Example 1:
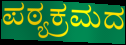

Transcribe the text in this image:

ಪಠ್ಯಕ್ರಮದ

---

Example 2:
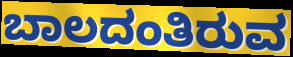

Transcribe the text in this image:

ಬಾಲದಂತಿರುವ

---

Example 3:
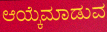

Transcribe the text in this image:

ಆಯ್ಕೆಮಾಡುವ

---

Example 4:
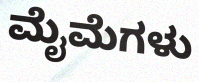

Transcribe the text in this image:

ಮೈಮೆಗಳು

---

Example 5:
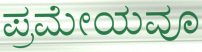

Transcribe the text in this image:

ಪ್ರಮೇಯವೂ